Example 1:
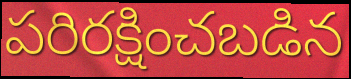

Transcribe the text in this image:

పరిరక్షించబడిన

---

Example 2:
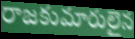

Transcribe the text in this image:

రాజకుమారులైన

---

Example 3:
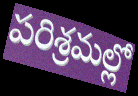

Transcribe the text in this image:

పరిశ్రమల్లో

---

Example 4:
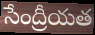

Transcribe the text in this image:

సేంద్రీయత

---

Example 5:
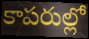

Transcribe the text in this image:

కాపరుల్లో